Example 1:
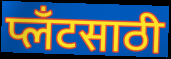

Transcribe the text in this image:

प्लँटसाठी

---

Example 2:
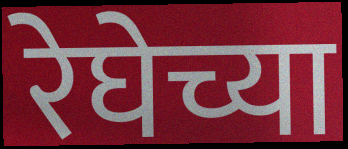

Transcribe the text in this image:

रेघेच्या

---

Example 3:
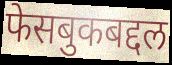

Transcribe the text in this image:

फेसबुकबद्दल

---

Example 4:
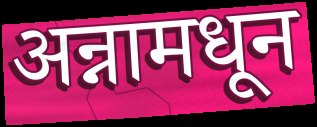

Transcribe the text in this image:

अन्नामधून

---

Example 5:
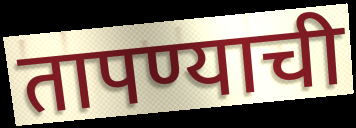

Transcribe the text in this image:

तापण्याची